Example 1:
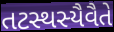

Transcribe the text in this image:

તટસ્થસ્યૈવૈતે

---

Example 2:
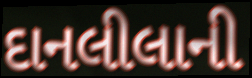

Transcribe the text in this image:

દાનલીલાની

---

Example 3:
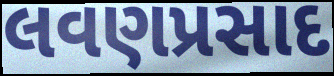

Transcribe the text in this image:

લવણપ્રસાદ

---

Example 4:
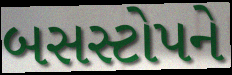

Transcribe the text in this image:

બસસ્ટોપને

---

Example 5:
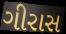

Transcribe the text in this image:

ગીરાસ